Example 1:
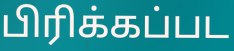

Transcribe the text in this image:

பிரிக்கப்பட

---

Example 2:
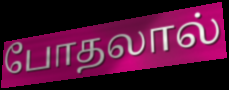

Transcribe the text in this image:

போதலால்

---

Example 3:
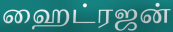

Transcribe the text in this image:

ஹைட்ரஜன்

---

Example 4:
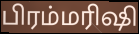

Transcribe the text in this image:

பிரம்மரிஷி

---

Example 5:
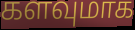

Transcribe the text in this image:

களவுமாக